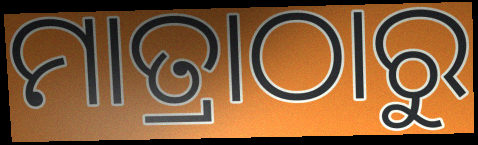
ମାତ୍ରାଠାରୁ